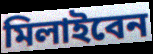
মিলাইবেন